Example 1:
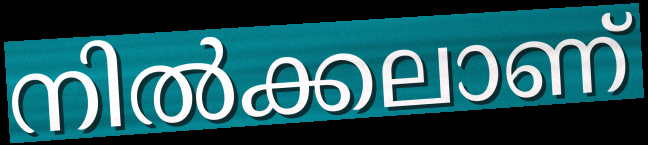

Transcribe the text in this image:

നിൽക്കലാണ്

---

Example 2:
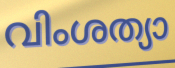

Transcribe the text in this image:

വിംശത്യാ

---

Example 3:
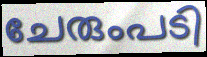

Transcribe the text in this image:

ചേരുംപടി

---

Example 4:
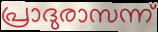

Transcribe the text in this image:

പ്രാദുരാസന്ന്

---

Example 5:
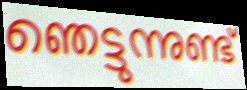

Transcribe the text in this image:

ഞെട്ടുന്നുണ്ട്